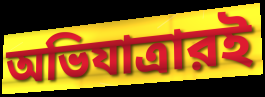
অভিযাত্রারই